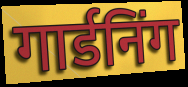
गार्डनिंग